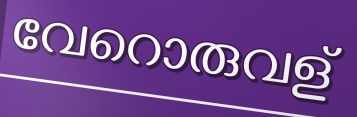
വേറൊരുവള്